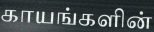
காயங்களின்